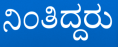
ನಿಂತಿದ್ದರು